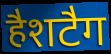
हैशटैग